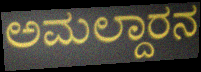
ಅಮಲ್ದಾರನ